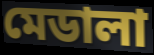
মেডালা